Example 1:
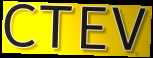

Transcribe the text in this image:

CTEV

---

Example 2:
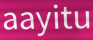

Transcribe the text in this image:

aayitu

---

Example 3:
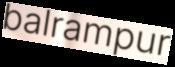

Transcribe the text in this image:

balrampur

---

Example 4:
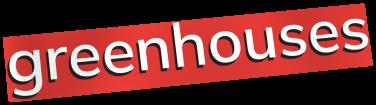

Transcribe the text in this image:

greenhouses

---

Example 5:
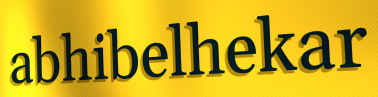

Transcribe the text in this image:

abhibelhekar